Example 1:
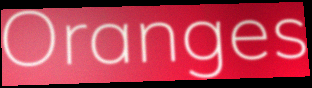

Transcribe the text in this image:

Oranges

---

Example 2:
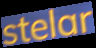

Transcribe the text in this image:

stelar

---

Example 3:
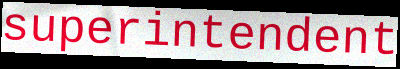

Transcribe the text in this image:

superintendent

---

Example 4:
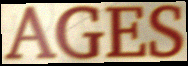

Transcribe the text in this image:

AGES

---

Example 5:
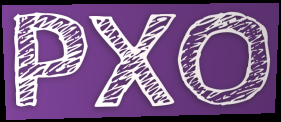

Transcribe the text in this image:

PXO